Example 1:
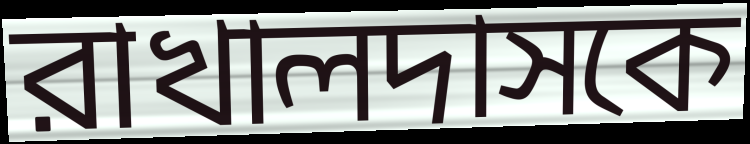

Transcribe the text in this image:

রাখালদাসকে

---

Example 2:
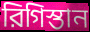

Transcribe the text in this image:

রিগিস্তান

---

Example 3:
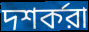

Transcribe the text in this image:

দশর্করা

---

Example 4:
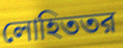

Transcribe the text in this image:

লোহিততর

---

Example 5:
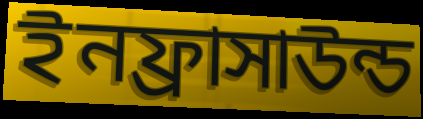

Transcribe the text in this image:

ইনফ্রাসাউন্ড